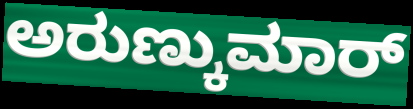
ಅರುಣ್ಕುಮಾರ್